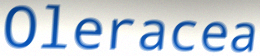
Oleracea